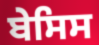
ਬੇਸਿਸ